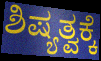
ಶಿಷ್ಯತ್ವಕ್ಕೆ